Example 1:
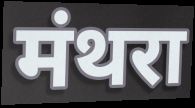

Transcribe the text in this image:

मंथरा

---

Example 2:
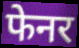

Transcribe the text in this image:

फेनर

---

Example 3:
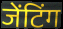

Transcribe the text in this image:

जेंटिंग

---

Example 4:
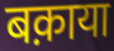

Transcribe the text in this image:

बक़ाया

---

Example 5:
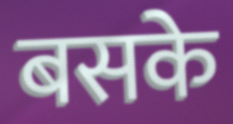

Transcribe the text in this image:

बसके